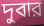
দুবার